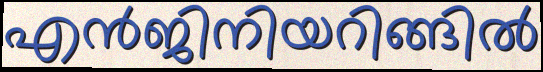
എൻജിനിയറിങ്ങിൽ